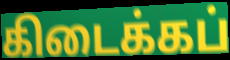
கிடைக்கப்